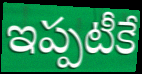
ఇప్పటీకే